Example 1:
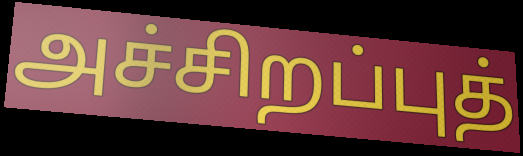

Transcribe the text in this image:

அச்சிறப்புத்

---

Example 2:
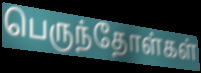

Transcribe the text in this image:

பெருந்தோள்கள்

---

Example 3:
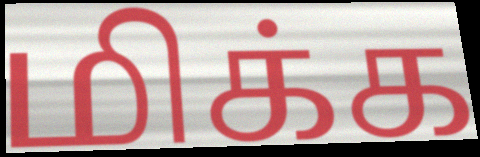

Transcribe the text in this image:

மிக்க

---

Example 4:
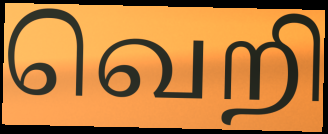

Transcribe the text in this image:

வெறி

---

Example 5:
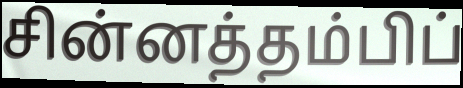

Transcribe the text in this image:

சின்னத்தம்பிப்